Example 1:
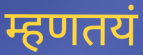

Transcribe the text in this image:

म्हणतयं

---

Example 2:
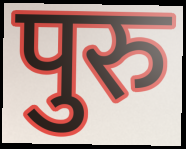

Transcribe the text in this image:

पुरु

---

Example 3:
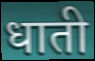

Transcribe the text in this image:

धाती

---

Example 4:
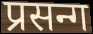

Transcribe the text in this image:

प्रसन्ग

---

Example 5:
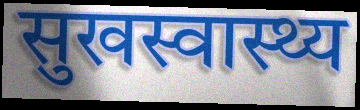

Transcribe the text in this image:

सुखस्वास्थ्य